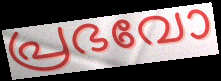
പ്രഭവോ